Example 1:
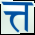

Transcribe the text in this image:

त्त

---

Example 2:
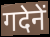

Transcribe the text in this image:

गदेनें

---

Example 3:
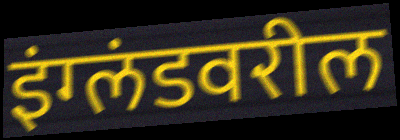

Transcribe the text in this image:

इंग्लंडवरील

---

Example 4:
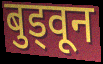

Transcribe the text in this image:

बुड्वून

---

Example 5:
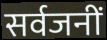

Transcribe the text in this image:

सर्वजनीं